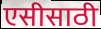
एसीसाठी